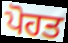
ਪੋਹਤ